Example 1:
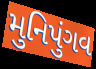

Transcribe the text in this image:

મુનિપુંગવ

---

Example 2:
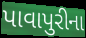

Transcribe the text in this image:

પાવાપુરીના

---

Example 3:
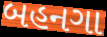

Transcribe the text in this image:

બહનગા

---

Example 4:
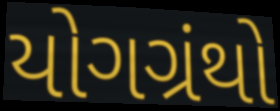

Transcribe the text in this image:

યોગગ્રંથો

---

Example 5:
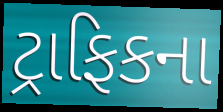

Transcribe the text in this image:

ટ્રાફિકના